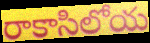
రాకాసిలోయ